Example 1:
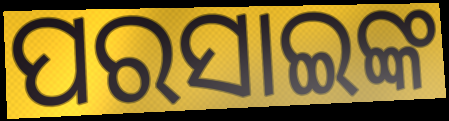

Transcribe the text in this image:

ପରସାଇଙ୍କ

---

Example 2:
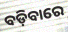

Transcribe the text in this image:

ବଡ଼ିବାରେ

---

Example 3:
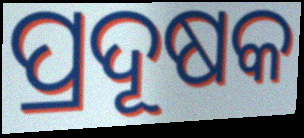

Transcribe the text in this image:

ପ୍ରଦୂଷକ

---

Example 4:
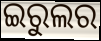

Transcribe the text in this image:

ଇରୁଲର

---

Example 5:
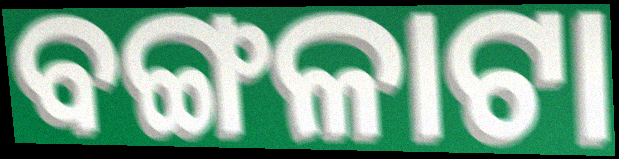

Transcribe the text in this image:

ବଙ୍ଗଳାଟା